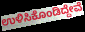
ಉಳಿಸಿಕೊಂಡಿದ್ದೇವೆ